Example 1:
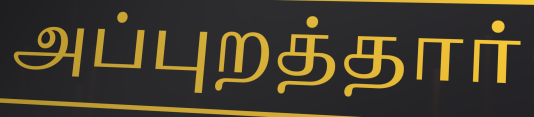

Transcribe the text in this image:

அப்புறத்தார்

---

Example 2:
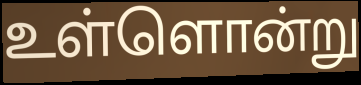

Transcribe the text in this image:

உள்ளொன்று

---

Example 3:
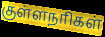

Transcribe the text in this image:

குள்ளநரிகள்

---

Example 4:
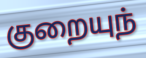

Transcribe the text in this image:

குறையுந்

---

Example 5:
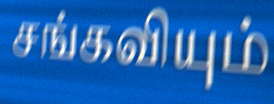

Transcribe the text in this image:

சங்கவியும்